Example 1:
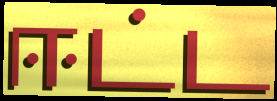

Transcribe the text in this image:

ஈட்ட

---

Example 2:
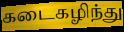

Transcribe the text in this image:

கடைகழிந்து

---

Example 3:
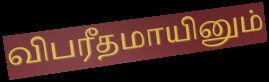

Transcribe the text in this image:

விபரீதமாயினும்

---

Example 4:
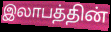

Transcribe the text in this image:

இலாபத்தின்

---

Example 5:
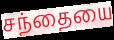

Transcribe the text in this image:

சந்தையை